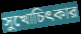
সুখোচিৎকার